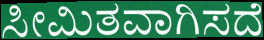
ಸೀಮಿತವಾಗಿಸದೆ